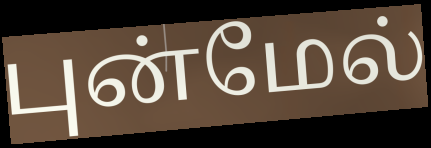
புன்மேல்